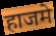
हाजमे